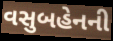
વસુબહેનની